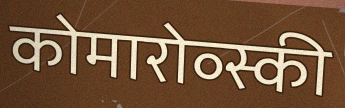
कोमारोव्स्की